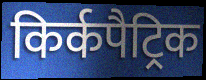
किर्कपैट्रिक